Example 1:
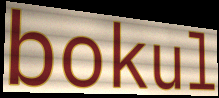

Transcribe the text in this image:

bokul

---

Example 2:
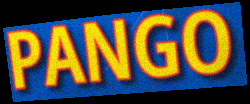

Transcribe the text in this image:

PANGO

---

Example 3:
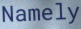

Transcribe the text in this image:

Namely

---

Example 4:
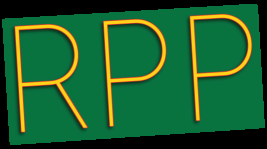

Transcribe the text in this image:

RPP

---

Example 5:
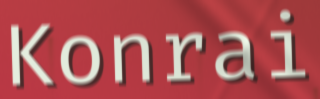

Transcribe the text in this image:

Konrai